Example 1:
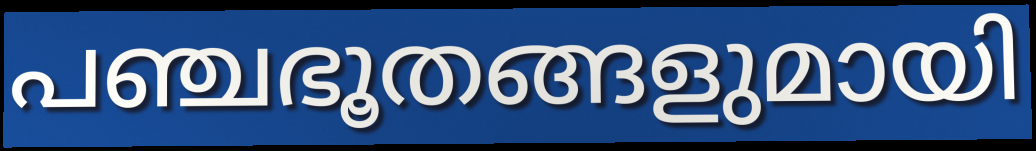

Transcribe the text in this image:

പഞ്ചഭൂതങ്ങളുമായി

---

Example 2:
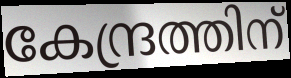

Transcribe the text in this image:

കേന്ദ്രത്തിന്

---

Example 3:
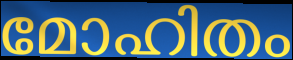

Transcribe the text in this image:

മോഹിതം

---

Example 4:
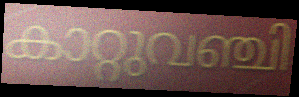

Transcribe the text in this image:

കാറ്റുവഞ്ചി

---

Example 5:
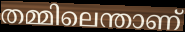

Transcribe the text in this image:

തമ്മിലെന്താണ്